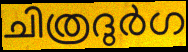
ചിത്രദുർഗ